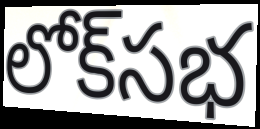
లోక్‌సభ